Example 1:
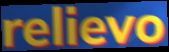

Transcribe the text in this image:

relievo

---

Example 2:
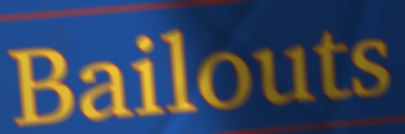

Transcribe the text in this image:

Bailouts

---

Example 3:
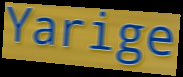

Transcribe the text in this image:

Yarige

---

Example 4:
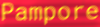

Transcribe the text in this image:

Pampore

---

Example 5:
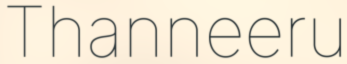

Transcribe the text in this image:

Thanneeru